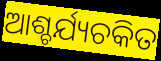
ଆଶ୍ଚର୍ଯ୍ୟଚକିତ